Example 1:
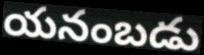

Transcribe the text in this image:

యనంబడు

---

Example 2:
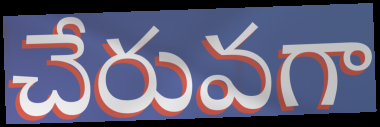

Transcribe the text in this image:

చేరువగా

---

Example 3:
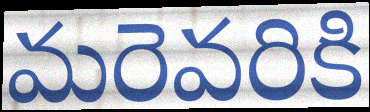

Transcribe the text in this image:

మరెవరికి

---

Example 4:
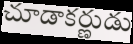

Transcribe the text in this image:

చూడాకర్ణుడు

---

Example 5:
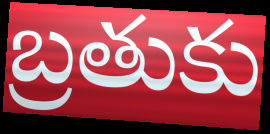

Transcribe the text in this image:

బ్రతుకు